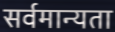
सर्वमान्यता